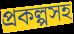
প্রকল্পসহ